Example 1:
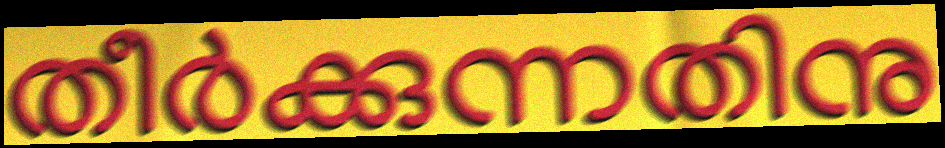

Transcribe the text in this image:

തീർക്കുന്നതിനു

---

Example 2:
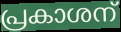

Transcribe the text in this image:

പ്രകാശന്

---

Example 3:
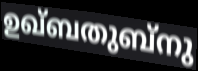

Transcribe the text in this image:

ഉഖ്ബതുബ്നു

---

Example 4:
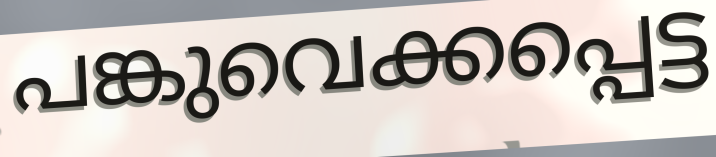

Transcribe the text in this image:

പങ്കുവെക്കപ്പെട്ട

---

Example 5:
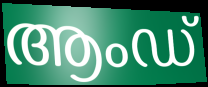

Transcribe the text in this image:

ആംഡ്